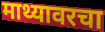
माथ्यावरचा